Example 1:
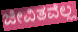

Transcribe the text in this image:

ಜೀವಿತವೆಲ್ಲ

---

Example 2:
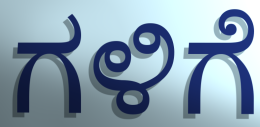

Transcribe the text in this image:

ಗಳಿಗೆ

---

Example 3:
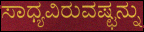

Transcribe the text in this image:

ಸಾಧ್ಯವಿರುವಷ್ಟನ್ನು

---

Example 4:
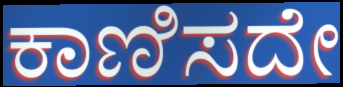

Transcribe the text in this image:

ಕಾಣಿಸದೇ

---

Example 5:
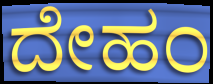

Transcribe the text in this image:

ದೇಹಂ